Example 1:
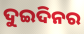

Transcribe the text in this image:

ଦୁଇଦିନର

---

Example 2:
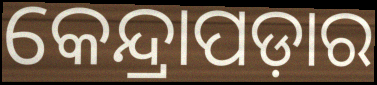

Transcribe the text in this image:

କେନ୍ଦ୍ରାପଡ଼ାର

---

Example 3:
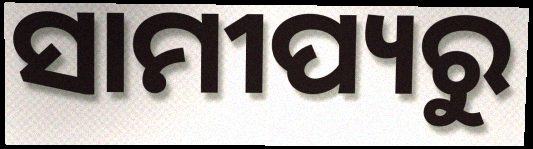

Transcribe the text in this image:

ସାମୀପ୍ୟରୁ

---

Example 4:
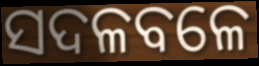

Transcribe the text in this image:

ସଦଳବଳେ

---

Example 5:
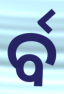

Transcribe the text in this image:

ର୍ବ